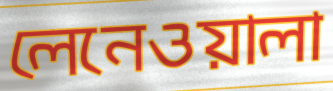
লেনেওয়ালা